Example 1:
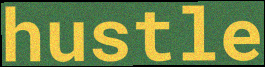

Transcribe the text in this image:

hustle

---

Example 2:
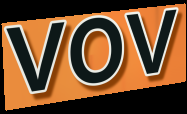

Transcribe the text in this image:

vov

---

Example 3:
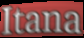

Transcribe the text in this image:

Itana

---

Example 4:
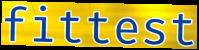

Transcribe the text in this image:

fittest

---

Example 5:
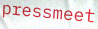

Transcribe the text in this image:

pressmeet